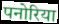
पनोरिया